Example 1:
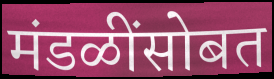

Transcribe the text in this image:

मंडळींसोबत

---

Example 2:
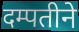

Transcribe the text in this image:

दम्पतीने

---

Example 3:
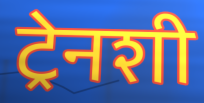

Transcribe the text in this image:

ट्रेनशी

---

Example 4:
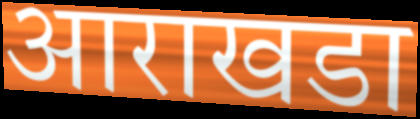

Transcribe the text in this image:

आराखडा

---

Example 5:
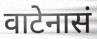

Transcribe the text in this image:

वाटेनासं